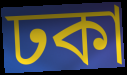
ঢকা